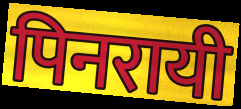
पिनरायी